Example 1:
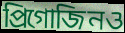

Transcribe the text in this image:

প্রিগোজিনও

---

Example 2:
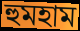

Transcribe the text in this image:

হুমহাম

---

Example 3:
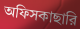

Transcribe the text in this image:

অফিসকাছারি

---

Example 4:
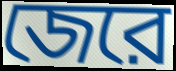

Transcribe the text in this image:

জেরে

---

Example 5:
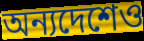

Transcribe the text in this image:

অন্যদেশেও